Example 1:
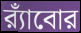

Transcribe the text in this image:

র‍্যাঁবোর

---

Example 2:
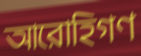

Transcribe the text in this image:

আরোহিগণ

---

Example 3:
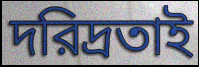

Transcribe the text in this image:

দরিদ্রতাই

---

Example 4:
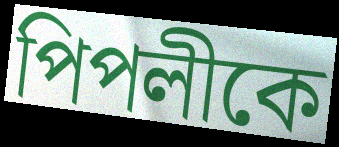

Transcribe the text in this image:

পিপলীকে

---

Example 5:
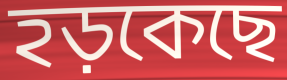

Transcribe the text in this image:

হড়কেছে